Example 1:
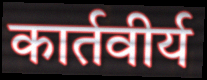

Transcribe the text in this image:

कार्तवीर्य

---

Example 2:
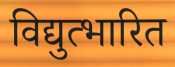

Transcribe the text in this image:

विद्युत्भारित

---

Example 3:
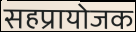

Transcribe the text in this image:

सहप्रायोजक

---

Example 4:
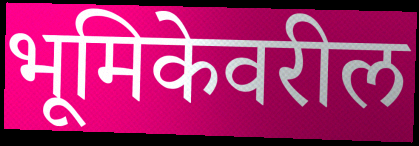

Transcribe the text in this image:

भूमिकेवरील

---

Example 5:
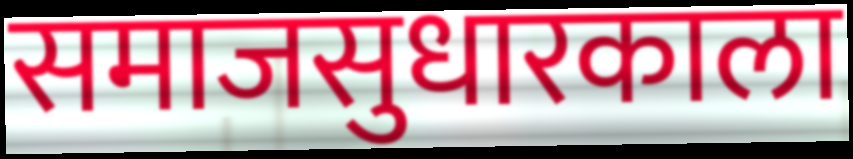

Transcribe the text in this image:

समाजसुधारकाला